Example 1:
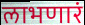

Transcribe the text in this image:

लाभणारं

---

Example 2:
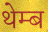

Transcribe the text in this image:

थेम्ब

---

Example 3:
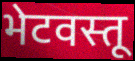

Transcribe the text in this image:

भेटवस्तू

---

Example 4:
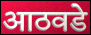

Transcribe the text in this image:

आठवडे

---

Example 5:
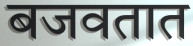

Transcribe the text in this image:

बजवतात